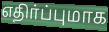
எதிர்ப்புமாக